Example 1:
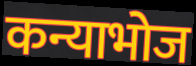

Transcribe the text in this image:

कन्याभोज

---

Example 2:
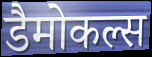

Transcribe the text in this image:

डैमोकल्स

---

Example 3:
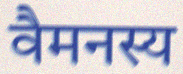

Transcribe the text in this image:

वैमनस्य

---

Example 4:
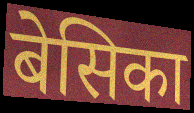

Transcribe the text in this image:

बेसिका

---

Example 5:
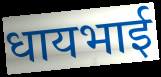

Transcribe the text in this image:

धायभाई